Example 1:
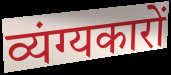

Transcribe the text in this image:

व्‍यंग्‍यकारों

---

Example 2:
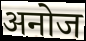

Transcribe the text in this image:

अनोज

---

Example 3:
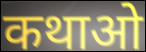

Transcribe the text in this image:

कथाओ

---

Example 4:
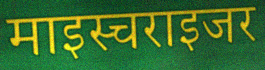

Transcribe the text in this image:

माइस्चराइजर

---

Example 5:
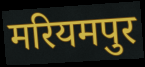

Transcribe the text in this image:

मरियमपुर